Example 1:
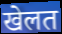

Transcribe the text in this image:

खेलत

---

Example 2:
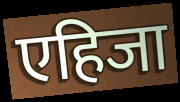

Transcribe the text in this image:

एहिजा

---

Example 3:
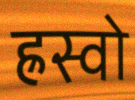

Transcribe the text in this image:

ह्रस्वो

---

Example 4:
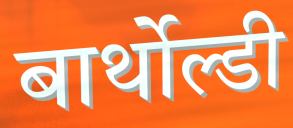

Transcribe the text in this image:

बार्थोल्डी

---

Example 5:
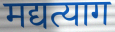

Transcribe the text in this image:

मद्यत्याग